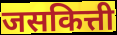
जसकित्ती